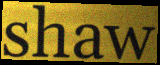
shaw